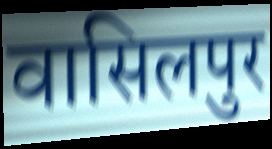
वासिलपुर